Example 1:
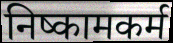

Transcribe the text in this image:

निष्कामकर्म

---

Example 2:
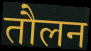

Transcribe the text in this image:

तौलन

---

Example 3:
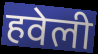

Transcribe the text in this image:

हवेली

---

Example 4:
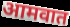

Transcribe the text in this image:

आमवात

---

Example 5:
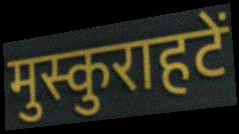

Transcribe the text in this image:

मुस्कुराहटें